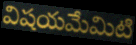
విషయమేమిటి